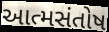
આત્મસંતોષ